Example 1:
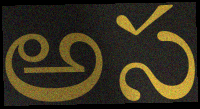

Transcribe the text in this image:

అస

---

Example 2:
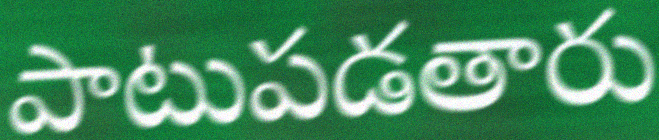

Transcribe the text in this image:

పాటుపడతారు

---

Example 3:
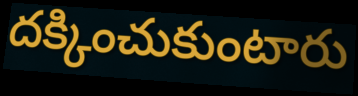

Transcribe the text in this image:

దక్కించుకుంటారు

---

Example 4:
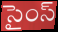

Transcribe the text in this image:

సైంస్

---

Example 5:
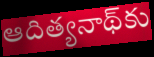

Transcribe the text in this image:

ఆదిత్యనాథ్‌కు